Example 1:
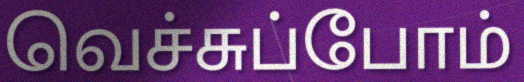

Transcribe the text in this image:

வெச்சுப்போம்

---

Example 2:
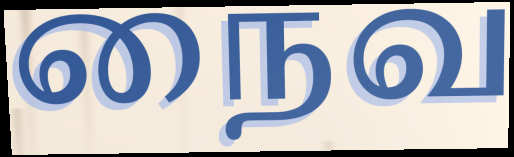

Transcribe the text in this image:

நைவ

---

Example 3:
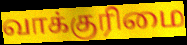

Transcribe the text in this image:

வாக்குரிமை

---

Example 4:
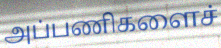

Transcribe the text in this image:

அப்பணிகளைச்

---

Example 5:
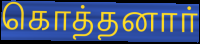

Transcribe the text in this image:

கொத்தனார்